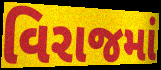
વિરાજમાં